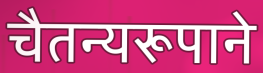
चैतन्यरूपाने